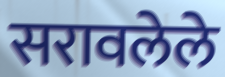
सरावलेले